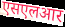
एसएलआर